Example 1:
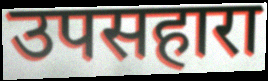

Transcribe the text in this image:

उपसहारा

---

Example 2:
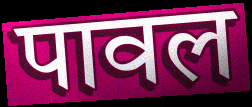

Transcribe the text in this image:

पावल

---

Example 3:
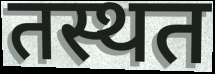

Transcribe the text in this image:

तस्थत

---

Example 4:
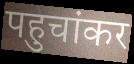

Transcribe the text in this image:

पहुचांकर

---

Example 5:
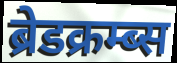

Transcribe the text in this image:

ब्रेडक्रम्ब्स